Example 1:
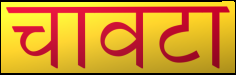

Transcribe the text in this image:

चावटा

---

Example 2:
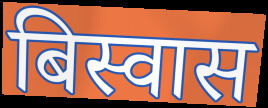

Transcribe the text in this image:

बिस्वास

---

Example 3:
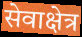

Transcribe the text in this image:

सेवाक्षेत्र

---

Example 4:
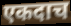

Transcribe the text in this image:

एकदाच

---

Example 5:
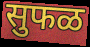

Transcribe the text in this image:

सुफळ